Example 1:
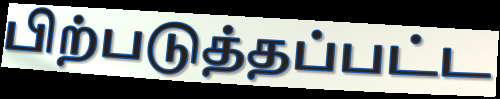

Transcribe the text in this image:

பிற்படுத்தப்பட்ட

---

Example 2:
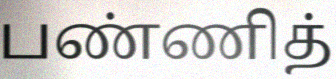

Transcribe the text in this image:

பண்ணித்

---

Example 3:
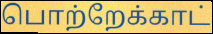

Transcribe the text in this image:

பொற்றேக்காட்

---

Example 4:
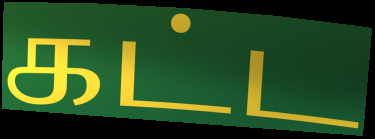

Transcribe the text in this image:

கட்ட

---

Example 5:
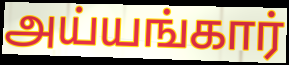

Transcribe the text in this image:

அய்யங்கார்